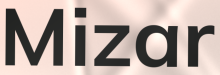
Mizar